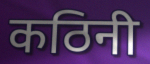
कठिनी